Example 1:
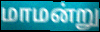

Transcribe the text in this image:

மாமன்று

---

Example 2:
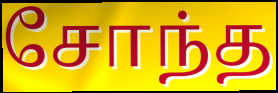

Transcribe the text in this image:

சோந்த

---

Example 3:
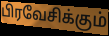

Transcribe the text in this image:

பிரவேசிக்கும்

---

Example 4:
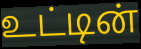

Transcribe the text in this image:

உட்டின்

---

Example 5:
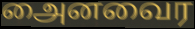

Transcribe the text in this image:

அைனவைர